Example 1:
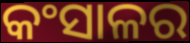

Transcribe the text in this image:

କଂସାଳର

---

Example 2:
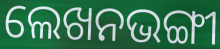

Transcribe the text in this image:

ଲେଖନଭଙ୍ଗୀ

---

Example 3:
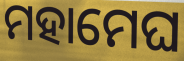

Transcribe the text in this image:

ମହାମେଘ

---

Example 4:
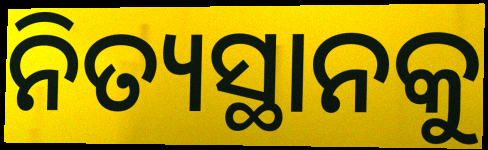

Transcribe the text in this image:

ନିତ୍ୟସ୍ଥାନକୁ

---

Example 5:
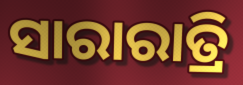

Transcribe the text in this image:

ସାରାରାତ୍ରି